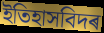
ইতিহাসবিদৰ